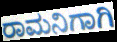
ರಾಮನಿಗಾಗಿ